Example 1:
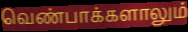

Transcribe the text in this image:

வெண்பாக்களாலும்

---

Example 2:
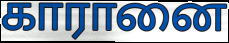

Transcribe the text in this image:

காரானை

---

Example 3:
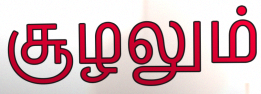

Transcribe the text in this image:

சூழலும்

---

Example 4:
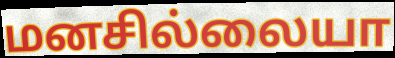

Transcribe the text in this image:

மனசில்லையா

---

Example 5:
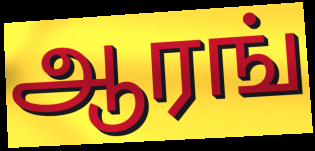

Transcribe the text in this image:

ஆரங்